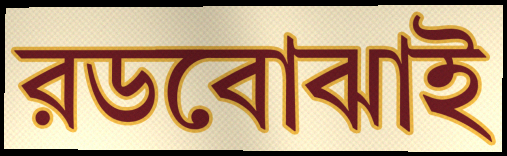
রডবোঝাই